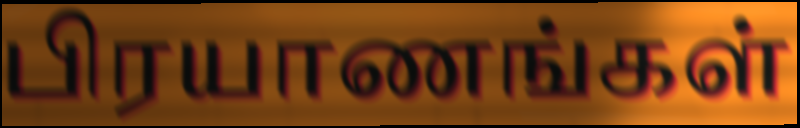
பிரயாணங்கள்